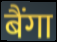
बैंगा